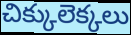
చిక్కులెక్కలు